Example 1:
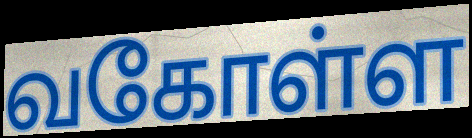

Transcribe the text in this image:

வகோள்ள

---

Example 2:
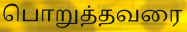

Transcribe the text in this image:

பொறுத்தவரை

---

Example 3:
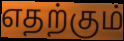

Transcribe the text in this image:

எதற்கும்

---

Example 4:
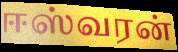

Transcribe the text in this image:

ஈஸ்வரன்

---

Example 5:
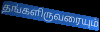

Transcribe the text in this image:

தங்களிருவரையும்